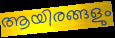
ആയിരങ്ങളും